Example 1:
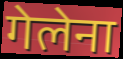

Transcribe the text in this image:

गेलेना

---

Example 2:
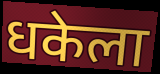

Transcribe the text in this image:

धकेला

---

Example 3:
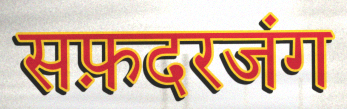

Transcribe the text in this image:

सफ़दरजंग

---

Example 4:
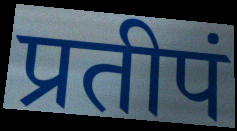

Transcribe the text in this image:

प्रतीपं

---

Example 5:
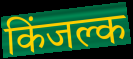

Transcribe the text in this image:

किंजल्क